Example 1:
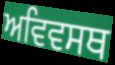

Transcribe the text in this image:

ਅਵਿਵਸਥ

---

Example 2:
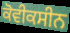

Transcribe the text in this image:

ਕੋਵੀਕਸੀਨ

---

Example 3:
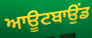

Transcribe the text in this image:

ਆਊਟਬਾਉਂਡ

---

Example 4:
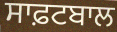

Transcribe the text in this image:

ਸਾਫ਼ਟਬਾਲ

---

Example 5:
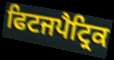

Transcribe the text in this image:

ਫਿਟਜਪੈਟ੍ਰਿਕ